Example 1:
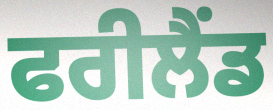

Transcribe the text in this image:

ਫਰੀਲੈਂਡ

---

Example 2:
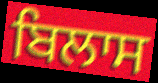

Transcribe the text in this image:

ਬਿਲਾਸ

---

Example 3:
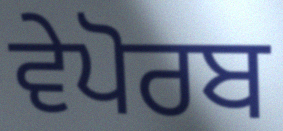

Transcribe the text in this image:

ਵੇਪੋਰਬ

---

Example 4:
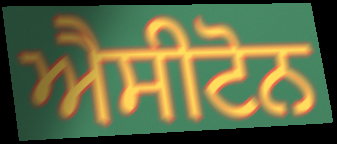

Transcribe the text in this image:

ਐਸੀਟੋਨ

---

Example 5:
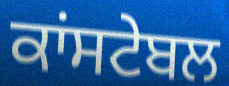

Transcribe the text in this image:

ਕਾਂਸਟੇਬਲ